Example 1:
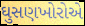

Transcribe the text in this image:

ઘુસણખોરોએ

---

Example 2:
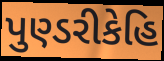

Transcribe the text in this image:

પુણ્ડરીકેહિ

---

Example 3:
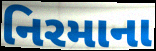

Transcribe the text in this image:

નિરમાના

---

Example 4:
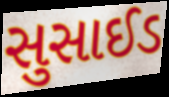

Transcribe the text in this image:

સુસાઈડ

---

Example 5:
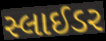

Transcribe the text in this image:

સ્લાઈડર